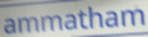
ammatham